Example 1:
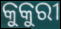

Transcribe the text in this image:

କୁକୁରୀ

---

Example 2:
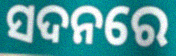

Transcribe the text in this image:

ସଦନରେ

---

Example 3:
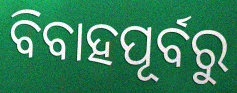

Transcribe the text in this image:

ବିବାହପୂର୍ବରୁ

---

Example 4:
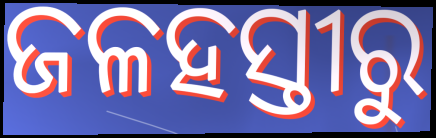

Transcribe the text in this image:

ଜଳହସ୍ତୀରୁ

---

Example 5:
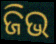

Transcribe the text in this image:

ଜିଭ